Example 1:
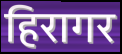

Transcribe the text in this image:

हिरागर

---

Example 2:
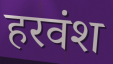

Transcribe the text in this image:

हरवंश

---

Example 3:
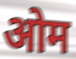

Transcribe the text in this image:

ओम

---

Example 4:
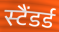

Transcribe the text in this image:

स्टैंडर्ड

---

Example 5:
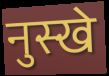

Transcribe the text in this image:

नुस्खे